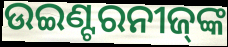
ଉଇଣ୍ଟରନୀଜ୍‌ଙ୍କ